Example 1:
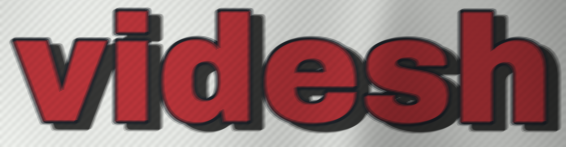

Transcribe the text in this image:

videsh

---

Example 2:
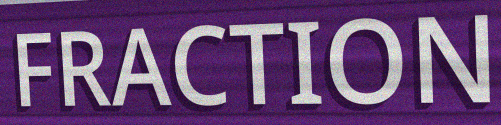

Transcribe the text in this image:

FRACTION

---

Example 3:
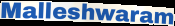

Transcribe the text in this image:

Malleshwaram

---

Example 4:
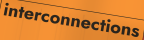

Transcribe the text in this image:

interconnections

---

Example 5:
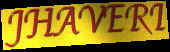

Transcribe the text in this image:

JHAVERI